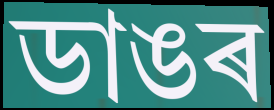
ডাঙৰ